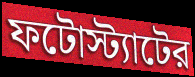
ফটোস্ট্যাটের